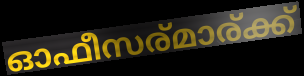
ഓഫീസര്മാര്ക്ക്